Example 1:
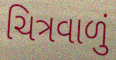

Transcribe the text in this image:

ચિત્રવાળું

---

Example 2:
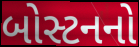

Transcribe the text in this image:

બોસ્ટનનો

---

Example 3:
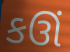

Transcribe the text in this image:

કઊં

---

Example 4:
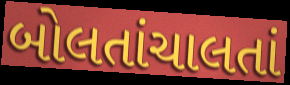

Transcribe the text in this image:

બોલતાંચાલતાં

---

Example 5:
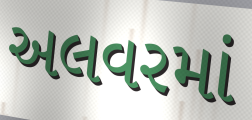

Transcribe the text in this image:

અલવરમાં